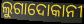
ଲୁଗାଦୋକାନୀ